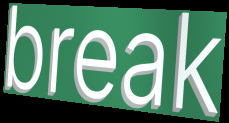
break